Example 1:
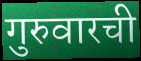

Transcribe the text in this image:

गुरुवारची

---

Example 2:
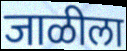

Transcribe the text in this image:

जाळीला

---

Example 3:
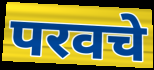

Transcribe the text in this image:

परवचे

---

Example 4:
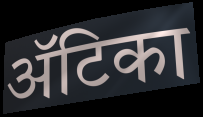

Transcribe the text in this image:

ॲटिका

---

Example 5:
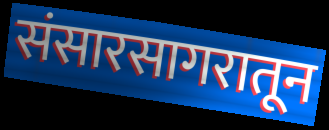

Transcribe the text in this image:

संसारसागरातून